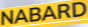
NABARD